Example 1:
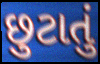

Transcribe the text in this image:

છુટાતું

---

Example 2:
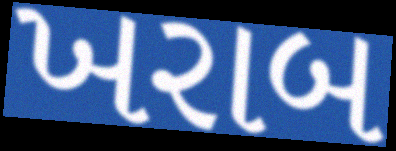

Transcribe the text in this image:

ખરાબ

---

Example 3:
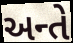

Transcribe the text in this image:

અન્તે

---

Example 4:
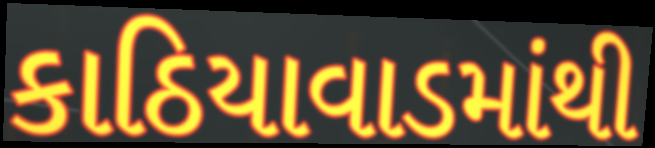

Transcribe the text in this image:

કાઠિયાવાડમાંથી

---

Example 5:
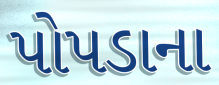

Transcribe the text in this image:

પોપડાના